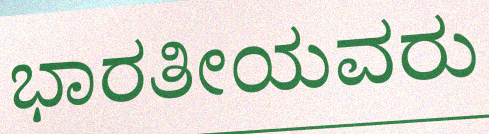
ಭಾರತೀಯವರು